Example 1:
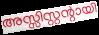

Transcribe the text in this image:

അസ്സിസ്റ്റന്റായി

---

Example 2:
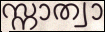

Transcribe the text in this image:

സ്നാത്വാ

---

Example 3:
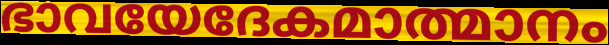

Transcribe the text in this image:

ഭാവയേദേകമാത്മാനം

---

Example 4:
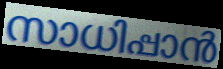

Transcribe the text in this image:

സാധിപ്പാൻ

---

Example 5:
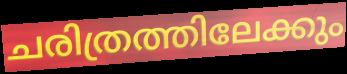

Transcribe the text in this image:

ചരിത്രത്തിലേക്കും